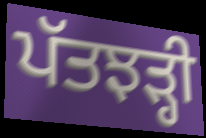
ਪੱਤਝੜ੍ਹੀ